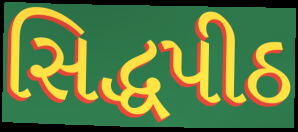
સિદ્ધપીઠ